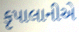
કૃપાલાનીએ